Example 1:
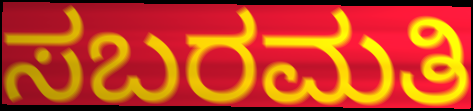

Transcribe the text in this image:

ಸಬರಮತಿ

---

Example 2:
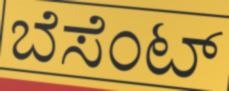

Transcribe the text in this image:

ಬೆಸೆಂಟ್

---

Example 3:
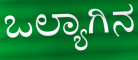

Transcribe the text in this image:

ಒಲ್ಯಾಗಿನ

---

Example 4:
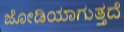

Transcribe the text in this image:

ಜೋಡಿಯಾಗುತ್ತದೆ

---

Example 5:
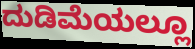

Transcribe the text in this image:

ದುಡಿಮೆಯಲ್ಲೂ